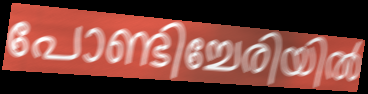
പോണ്ടിച്ചേരിയിൽ